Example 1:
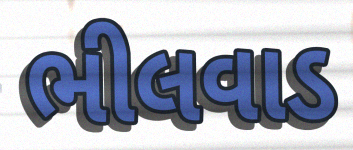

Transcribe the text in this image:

ભીલવાડ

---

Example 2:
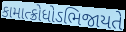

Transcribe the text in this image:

કામાત્ક્રોધોઽભિજાયતે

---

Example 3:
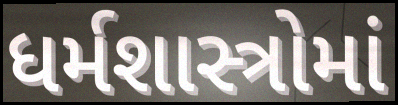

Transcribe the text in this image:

ધર્મશાસ્ત્રોમાં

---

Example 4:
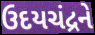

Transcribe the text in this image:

ઉદયચંદ્રને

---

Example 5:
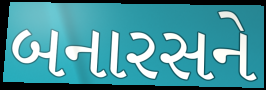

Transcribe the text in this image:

બનારસને